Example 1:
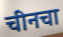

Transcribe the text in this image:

चीनचा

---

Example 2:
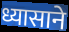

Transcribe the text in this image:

ध्यासाने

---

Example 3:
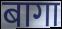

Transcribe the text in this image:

बागा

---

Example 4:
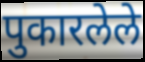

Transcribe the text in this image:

पुकारलेले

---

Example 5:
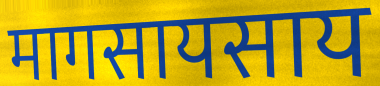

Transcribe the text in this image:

मागसायसाय